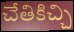
చేతికిచ్చి